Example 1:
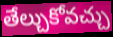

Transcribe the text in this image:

తేల్చుకోవచ్చు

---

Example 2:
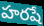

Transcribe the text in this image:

హరషే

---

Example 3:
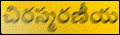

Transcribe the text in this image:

చిరస్మరణీయ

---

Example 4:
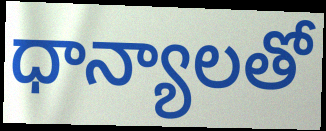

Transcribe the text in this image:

ధాన్యాలతో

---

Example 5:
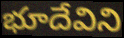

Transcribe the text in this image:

భూదేవిని